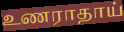
உணராதாய்